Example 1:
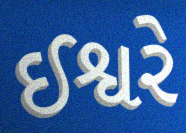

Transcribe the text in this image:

ઈશ્વરે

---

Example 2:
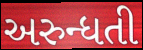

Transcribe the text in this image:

અરુન્ધતી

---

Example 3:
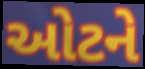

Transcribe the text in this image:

ઓટને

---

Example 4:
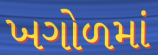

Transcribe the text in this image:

ખગોળમાં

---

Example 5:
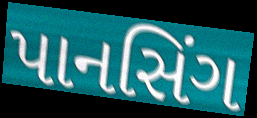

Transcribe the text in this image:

પાનસિંગ